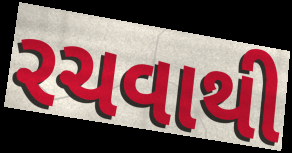
રચવાથી